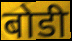
बोडी